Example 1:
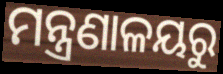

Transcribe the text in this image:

ମନ୍ତ୍ରଣାଳୟରୁ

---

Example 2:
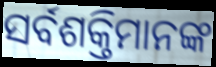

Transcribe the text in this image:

ସର୍ବଶକ୍ତିମାନଙ୍କ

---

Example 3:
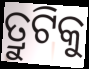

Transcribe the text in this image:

ତ୍ରୁଟିକୁ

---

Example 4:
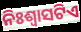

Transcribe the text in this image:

ନିଃଶ୍ୱାସଟିଏ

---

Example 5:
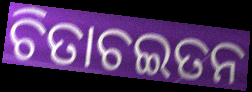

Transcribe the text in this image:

ଚିତାଚଇତନ